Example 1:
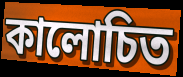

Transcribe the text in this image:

কালোচিত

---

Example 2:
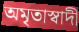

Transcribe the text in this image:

অমৃতাস্বাদী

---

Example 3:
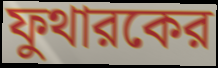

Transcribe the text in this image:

ফুথারকের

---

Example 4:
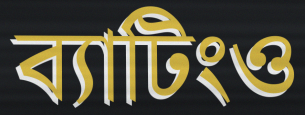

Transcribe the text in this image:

ব্যাটিংও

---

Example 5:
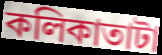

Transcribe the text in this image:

কলিকাতাটা